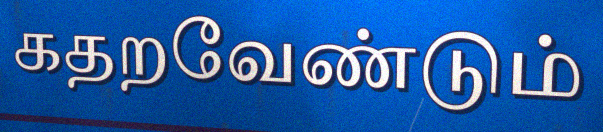
கதறவேண்டும்